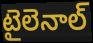
టైలెనాల్